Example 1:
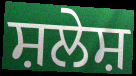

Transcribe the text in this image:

ਸ਼ਲੇਸ਼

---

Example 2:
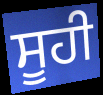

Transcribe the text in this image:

ਸੂਹੀ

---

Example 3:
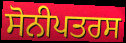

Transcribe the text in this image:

ਸੋਨੀਪਤਰਸ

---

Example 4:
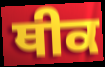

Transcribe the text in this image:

ਥੀਕ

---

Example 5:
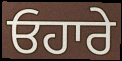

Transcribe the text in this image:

ਓਹਾਰੇ